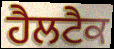
ਹੈਲਟੈਕ